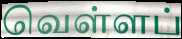
வெள்ளப்